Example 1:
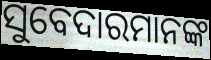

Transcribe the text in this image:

ସୁବେଦାରମାନଙ୍କ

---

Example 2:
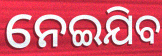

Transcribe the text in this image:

ନେଇଯିବ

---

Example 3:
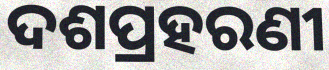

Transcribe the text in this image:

ଦଶପ୍ରହରଣୀ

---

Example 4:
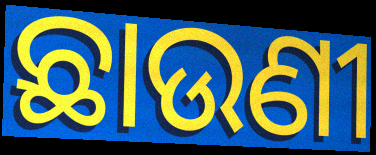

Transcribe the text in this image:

ଛାଉଣୀ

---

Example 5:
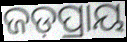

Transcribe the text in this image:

ଜଡ଼ପ୍ରାୟ